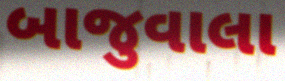
બાજુવાલા